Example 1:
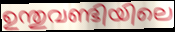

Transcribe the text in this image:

ഉന്തുവണ്ടിയിലെ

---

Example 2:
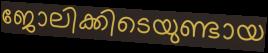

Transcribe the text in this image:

ജോലിക്കിടെയുണ്ടായ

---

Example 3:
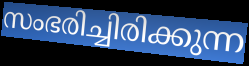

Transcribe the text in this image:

സംഭരിച്ചിരിക്കുന്ന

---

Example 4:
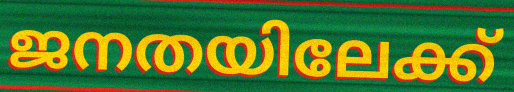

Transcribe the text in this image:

ജനതയിലേക്ക്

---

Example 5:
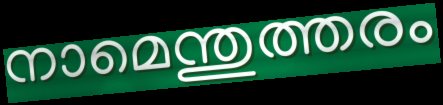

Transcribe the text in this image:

നാമെന്തുത്തരം